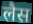
लैस